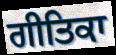
ਗੀਤਿਕਾ